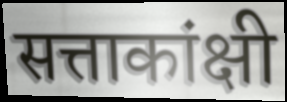
सत्ताकांक्षी